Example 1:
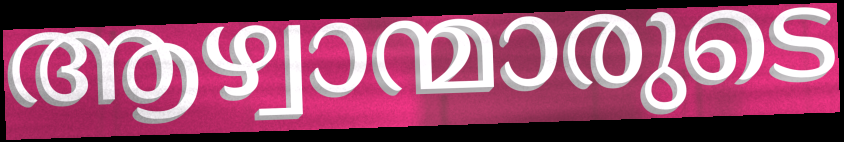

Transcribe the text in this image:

ആഴ്വാന്മാരുടെ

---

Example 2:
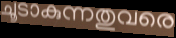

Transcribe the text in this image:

ചൂടാകുന്നതുവരെ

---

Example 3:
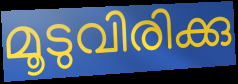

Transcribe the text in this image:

മൂടുവിരിക്കു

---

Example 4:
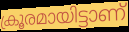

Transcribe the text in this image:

ക്രൂരമായിട്ടാണ്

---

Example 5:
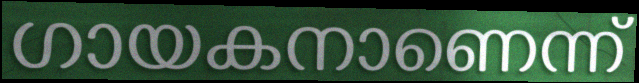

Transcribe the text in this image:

ഗായകനാണെന്ന്